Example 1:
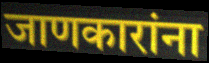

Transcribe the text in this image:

जाणकारांना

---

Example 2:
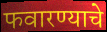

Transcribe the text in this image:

फवारण्याचे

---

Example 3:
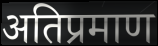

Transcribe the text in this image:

अतिप्रमाण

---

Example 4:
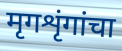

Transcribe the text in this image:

मृगशृंगांचा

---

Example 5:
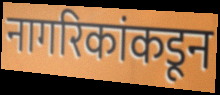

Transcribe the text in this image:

नागरिकांकडून